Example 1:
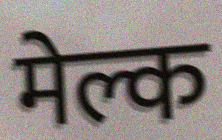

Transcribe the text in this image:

मेल्क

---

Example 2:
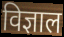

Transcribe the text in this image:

विज्ञाल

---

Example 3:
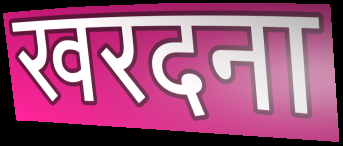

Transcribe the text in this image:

खरदना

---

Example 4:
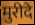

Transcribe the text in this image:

मुरीदे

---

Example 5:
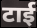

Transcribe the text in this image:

टाई